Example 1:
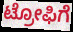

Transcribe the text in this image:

ಟ್ರೋಫಿಗೆ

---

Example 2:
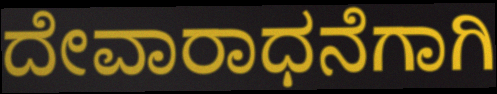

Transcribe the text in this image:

ದೇವಾರಾಧನೆಗಾಗಿ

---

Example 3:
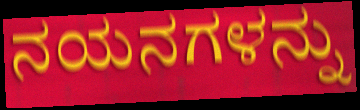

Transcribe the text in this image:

ನಯನಗಳನ್ನು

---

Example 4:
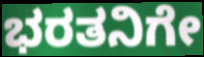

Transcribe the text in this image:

ಭರತನಿಗೇ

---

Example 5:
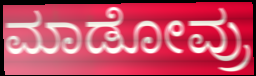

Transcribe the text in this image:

ಮಾಡೋವ್ರು